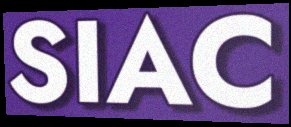
SIAC